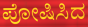
ಪೋಷಿಸಿದ